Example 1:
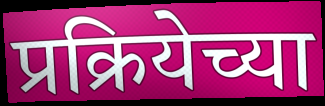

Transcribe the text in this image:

प्रक्रियेच्या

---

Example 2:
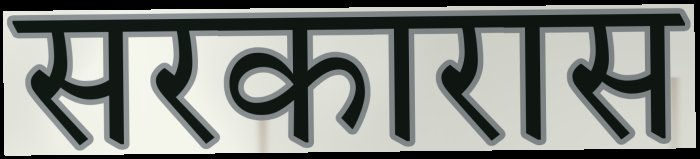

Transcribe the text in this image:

सरकारास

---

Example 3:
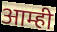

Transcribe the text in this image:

आम्‍ही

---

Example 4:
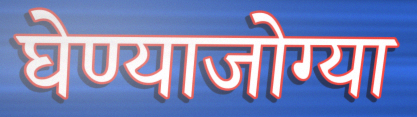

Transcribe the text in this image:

घेण्याजोग्या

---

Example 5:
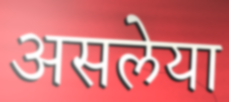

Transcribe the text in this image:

असलेया